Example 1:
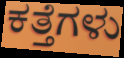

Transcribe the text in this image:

ಕತ್ತೆಗಳು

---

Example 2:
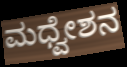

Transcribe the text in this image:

ಮಧ್ವೇಶನ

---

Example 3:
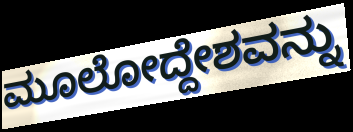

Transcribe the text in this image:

ಮೂಲೋದ್ದೇಶವನ್ನು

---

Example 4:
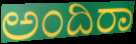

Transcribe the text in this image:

ಅಂದಿರಾ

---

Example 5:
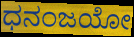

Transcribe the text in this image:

ಧನಂಜಯೋ